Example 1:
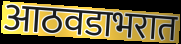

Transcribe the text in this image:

आठवडाभरात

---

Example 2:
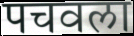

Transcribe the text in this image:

पचवला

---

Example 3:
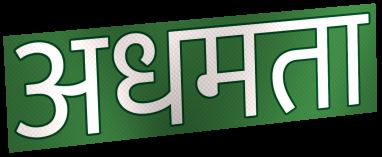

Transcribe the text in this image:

अधमता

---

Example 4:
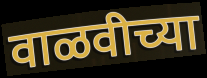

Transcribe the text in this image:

वाळवीच्या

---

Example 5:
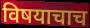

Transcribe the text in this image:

विषयाचाच